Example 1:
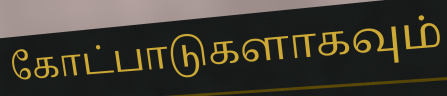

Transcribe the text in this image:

கோட்பாடுகளாகவும்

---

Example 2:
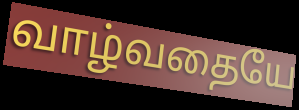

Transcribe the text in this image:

வாழ்வதையே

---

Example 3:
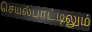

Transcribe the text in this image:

செயல்பாட்டிலும்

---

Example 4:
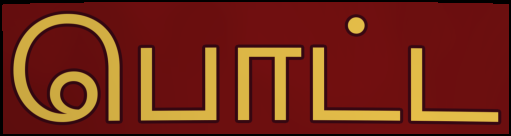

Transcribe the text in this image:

பொட்ட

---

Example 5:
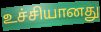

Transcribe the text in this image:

உச்சியானது